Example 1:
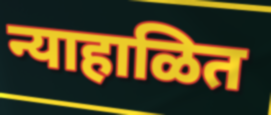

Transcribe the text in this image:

न्याहाळित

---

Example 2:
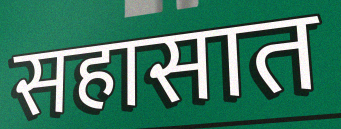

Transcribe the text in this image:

सहासात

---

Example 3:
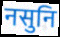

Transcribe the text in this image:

नसुनि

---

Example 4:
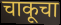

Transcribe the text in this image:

चाकूचा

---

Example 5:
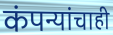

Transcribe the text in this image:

कंपन्यांचाही